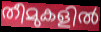
തീമുകളിൽ